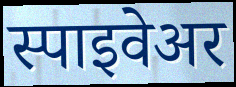
स्पाइवेअर